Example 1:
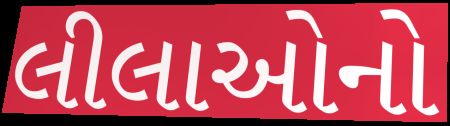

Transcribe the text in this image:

લીલાઓનો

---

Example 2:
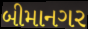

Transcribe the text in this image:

બીમાનગર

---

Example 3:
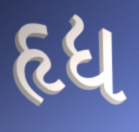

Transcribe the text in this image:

હૃદ્ય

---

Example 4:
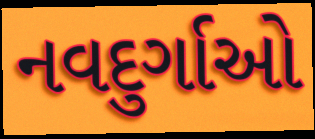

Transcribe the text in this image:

નવદુર્ગાઓ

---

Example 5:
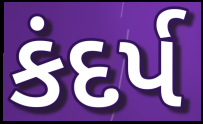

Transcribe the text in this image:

કંદર્પ